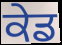
ਕੇਡ